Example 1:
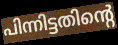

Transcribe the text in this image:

പിന്നിട്ടതിന്റെ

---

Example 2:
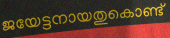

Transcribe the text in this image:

ജയേട്ടനായതുകൊണ്ട്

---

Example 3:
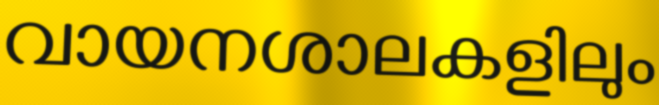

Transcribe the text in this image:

വായനശാലകളിലും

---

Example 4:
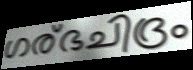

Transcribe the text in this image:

ഗര്ഭചിദ്രം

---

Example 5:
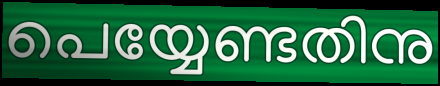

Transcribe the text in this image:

പെയ്യേണ്ടതിനു